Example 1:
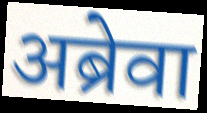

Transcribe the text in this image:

अब्रेवा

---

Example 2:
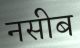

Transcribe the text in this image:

नसीब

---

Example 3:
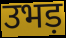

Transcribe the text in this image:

उभड़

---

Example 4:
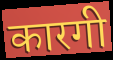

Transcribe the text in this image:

कारगी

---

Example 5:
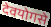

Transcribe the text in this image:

देवयोगसे